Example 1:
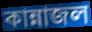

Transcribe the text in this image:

কান্নাজল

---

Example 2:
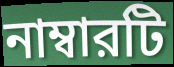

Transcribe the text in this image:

নাম্বারটি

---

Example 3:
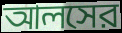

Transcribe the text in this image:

আলসের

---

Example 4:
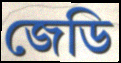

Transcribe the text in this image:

জেডি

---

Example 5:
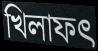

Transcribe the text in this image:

খিলাফৎ